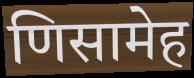
णिसामेह